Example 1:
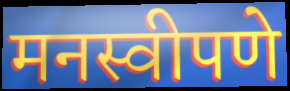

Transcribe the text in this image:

मनस्वीपणे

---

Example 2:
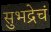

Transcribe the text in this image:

सुभद्रेचं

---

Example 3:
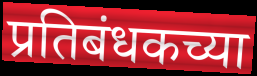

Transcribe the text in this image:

प्रतिबंधकच्या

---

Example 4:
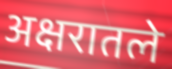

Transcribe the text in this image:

अक्षरातले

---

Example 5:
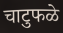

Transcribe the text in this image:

चाटुफळे